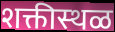
शक्तीस्थळ